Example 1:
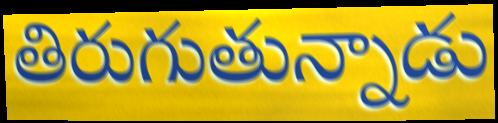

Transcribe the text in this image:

తిరుగుతున్నాడు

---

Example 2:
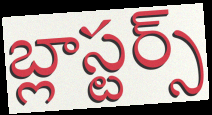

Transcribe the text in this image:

బ్లాస్టర్స్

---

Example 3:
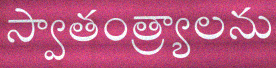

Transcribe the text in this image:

స్వాతంత్ర్యాలను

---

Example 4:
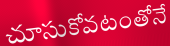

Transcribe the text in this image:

చూసుకోవటంతోనే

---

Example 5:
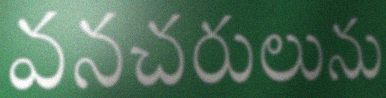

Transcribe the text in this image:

వనచరులును